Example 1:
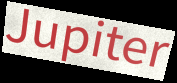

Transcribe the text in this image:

Jupiter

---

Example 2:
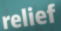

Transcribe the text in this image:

relief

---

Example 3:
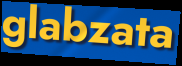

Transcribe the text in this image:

glabzata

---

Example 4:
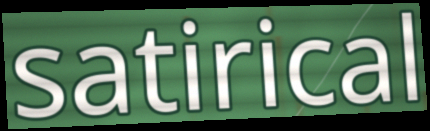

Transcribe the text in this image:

satirical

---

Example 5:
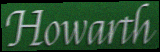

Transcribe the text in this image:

Howarth